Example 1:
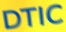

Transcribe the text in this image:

DTIC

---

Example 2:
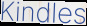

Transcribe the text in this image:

Kindles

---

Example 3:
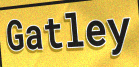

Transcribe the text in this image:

Gatley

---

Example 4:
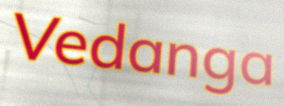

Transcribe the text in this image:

Vedanga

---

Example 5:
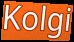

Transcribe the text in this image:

Kolgi